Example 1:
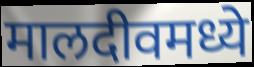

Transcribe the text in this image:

मालदीवमध्ये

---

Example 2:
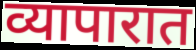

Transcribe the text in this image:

व्यापारात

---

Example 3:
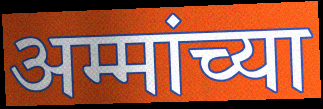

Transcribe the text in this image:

अम्मांच्या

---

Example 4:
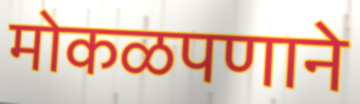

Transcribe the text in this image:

मोकळपणाने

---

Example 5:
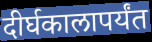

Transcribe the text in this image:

दीर्घकालापर्यंत